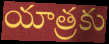
యాత్రకు